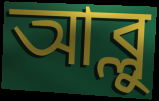
আব্লু